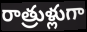
రాత్రుళ్లుగా